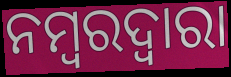
ନମ୍ବରଦ୍ୱାରା